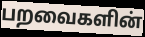
பறவைகளின்